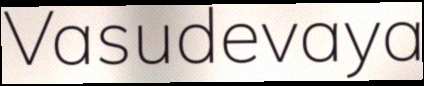
Vasudevaya